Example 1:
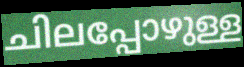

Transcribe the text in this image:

ചിലപ്പോഴുള്ള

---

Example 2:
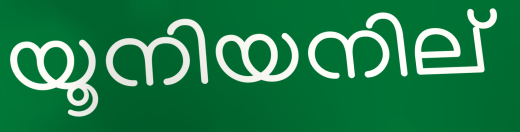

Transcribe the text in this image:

യൂനിയനില്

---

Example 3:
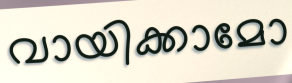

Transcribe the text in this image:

വായിക്കാമോ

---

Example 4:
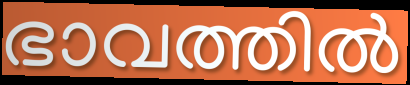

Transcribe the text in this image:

ഭാവത്തിൽ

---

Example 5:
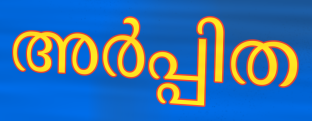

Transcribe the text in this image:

അർപ്പിത